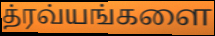
த்ரவ்யங்களை